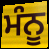
ਮੰਨੂ